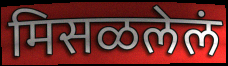
मिसळलेलं